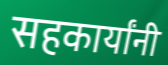
सहकार्यांनी